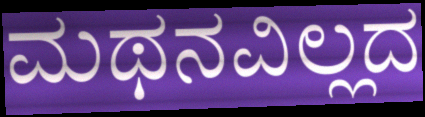
ಮಥನವಿಲ್ಲದ